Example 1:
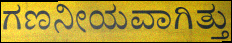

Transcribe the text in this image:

ಗಣನೀಯವಾಗಿತ್ತು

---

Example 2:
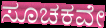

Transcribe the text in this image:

ಸೂಚಕವೇ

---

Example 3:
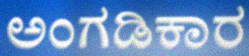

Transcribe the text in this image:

ಅಂಗಡಿಕಾರ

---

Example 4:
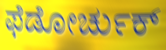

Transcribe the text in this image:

ಫೆಡೋರ್ಚುಕ್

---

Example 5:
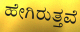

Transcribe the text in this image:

ಹೇಗಿರುತ್ತವೆ